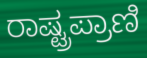
ರಾಷ್ಟ್ರಪ್ರಾಣಿ